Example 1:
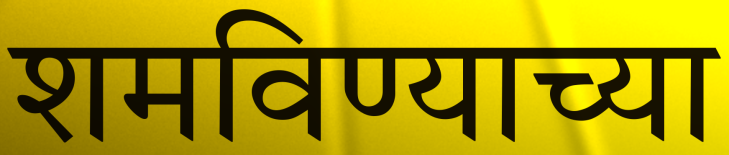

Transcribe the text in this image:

शमविण्याच्या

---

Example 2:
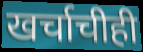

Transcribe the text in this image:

खर्चाचीही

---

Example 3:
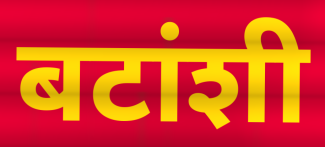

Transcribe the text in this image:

बटांशी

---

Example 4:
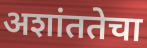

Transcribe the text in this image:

अशांततेचा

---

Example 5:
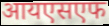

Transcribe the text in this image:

आयएसएफ